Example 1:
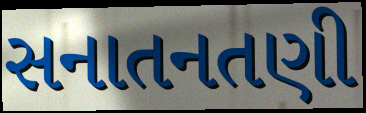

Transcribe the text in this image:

સનાતનતણી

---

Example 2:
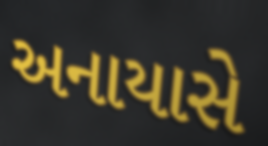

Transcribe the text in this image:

અનાયાસે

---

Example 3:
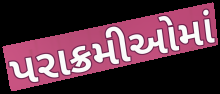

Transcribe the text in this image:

પરાક્રમીઓમાં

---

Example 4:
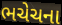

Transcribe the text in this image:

ભચેચના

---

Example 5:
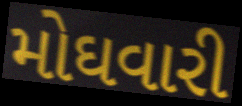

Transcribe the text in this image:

મોઘવારી